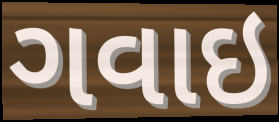
ગવાઇ